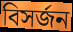
বিসৰ্জন